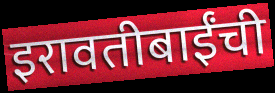
इरावतीबाईंची